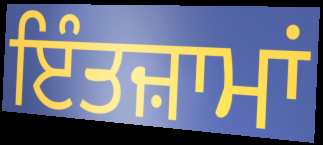
ਇੰਤਜ਼ਾਮਾਂ